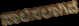
ಪಾಲಿಸಲಾಗಿದೆ